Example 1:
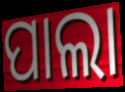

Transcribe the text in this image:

ପାଲା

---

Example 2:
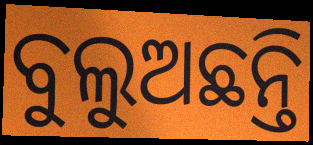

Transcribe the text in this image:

ବୁଲୁଅଛନ୍ତି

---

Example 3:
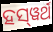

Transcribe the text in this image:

ହସ୍‌ୱର୍ଥ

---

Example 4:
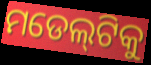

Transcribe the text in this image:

ମଡେଲ୍‌ଟିକୁ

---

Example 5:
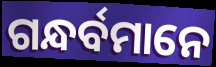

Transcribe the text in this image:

ଗନ୍ଧର୍ବମାନେ